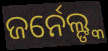
ଜର୍ନେଲ୍ଙ୍କ